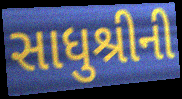
સાધુશ્રીની